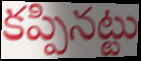
కప్పినట్టు